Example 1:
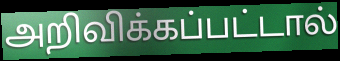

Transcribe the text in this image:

அறிவிக்கப்பட்டால்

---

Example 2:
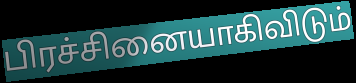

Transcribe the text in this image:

பிரச்சினையாகிவிடும்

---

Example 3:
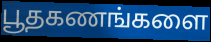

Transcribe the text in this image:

பூதகணங்களை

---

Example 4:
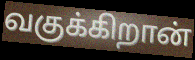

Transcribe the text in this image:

வகுக்கிறான்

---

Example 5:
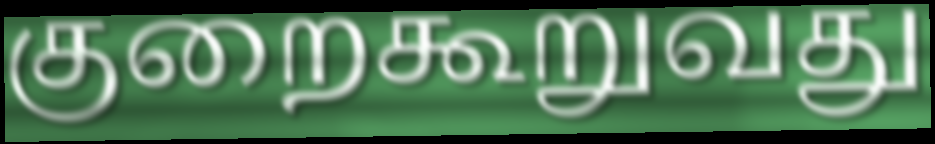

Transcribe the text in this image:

குறைகூறுவது